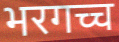
भरगच्च